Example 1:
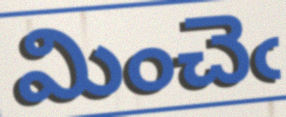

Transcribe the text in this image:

మించెఁ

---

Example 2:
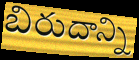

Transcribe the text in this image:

బిరుదాన్ని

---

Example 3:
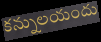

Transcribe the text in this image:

కన్నులయందు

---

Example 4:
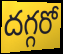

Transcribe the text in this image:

దగ్గరో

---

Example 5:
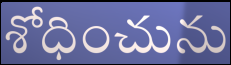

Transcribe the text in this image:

శోధించును